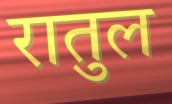
रातुल